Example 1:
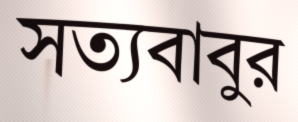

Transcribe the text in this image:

সত্যবাবুর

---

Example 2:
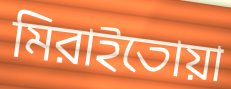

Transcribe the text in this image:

মিরাইতোয়া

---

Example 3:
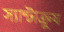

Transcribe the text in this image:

স্যান্টাক্রুয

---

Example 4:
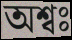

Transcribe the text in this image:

অশ্বঃ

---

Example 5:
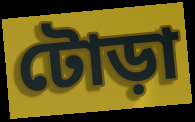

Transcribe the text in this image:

টোড়া